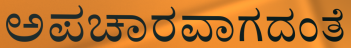
ಅಪಚಾರವಾಗದಂತೆ